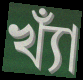
খ্যাঁ